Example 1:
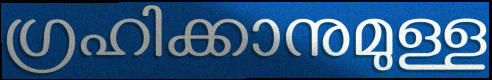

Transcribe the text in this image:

ഗ്രഹിക്കാനുമുള്ള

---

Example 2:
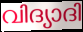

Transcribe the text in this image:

വിദ്യാദി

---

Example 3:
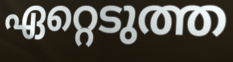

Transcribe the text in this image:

ഏറ്റെടുത്ത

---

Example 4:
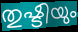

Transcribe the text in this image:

തുഷ്ടിയും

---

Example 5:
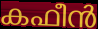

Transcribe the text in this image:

കഫീൻ